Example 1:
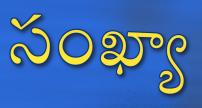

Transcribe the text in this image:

సంఖ్యా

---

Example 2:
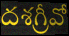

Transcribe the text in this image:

దశగ్రీవో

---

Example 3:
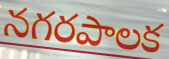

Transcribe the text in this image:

నగరపాలక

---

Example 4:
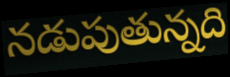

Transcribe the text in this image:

నడుపుతున్నది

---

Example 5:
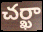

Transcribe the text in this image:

చర్ఖా